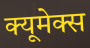
क्यूमेक्स